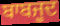
ਬਾਬਜੂਦ